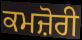
ਕਮਜ਼ੋਰੀ